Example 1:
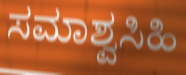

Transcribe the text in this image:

ಸಮಾಶ್ವಸಿಹಿ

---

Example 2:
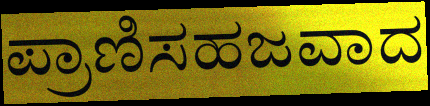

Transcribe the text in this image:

ಪ್ರಾಣಿಸಹಜವಾದ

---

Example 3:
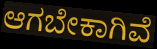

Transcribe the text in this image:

ಆಗಬೇಕಾಗಿವೆ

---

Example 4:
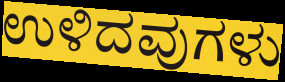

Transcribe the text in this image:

ಉಳಿದವುಗಳು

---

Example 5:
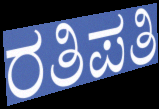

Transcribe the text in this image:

ರತಿಪತಿ